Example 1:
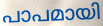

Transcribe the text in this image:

പാപമായി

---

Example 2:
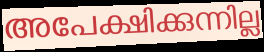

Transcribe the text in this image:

അപേക്ഷിക്കുന്നില്ല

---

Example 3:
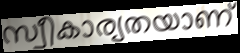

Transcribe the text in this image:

സ്വീകാര്യതയാണ്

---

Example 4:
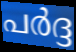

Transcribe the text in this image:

പർദ്ദ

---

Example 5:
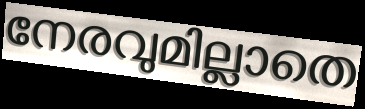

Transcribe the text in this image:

നേരവുമില്ലാതെ